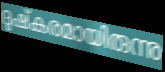
ദുഷ്‌കരമായിരുന്നു